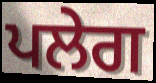
ਪਲੇਗ